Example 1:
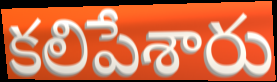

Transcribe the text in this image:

కలిపేశారు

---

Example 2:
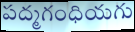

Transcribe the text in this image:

పద్మగంధియగు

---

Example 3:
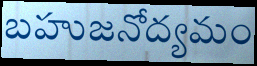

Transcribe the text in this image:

బహుజనోద్యమం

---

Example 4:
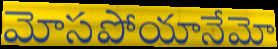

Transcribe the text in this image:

మోసపోయానేమో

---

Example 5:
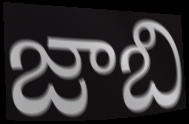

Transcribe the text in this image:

జాబి